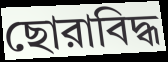
ছোরাবিদ্ধ